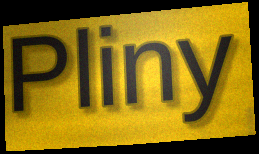
Pliny